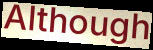
Although